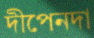
দীপেনদা